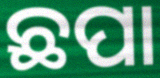
ଛପା